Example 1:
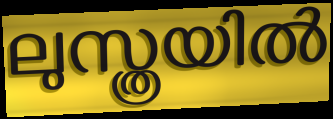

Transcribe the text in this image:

ലുസ്ത്രയിൽ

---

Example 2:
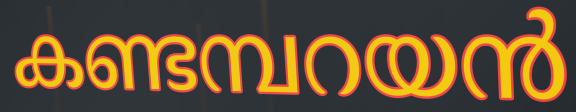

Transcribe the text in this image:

കണ്ടമ്പറയൻ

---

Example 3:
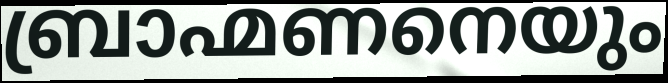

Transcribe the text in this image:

ബ്രാഹ്മണനെയും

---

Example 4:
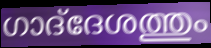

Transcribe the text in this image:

ഗാദ്‌ദേശത്തും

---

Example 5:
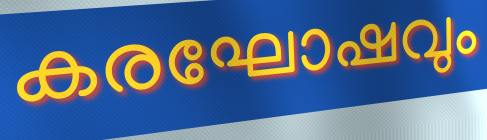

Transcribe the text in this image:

കരഘോഷവും